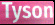
Tyson